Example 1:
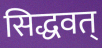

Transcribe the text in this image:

सिद्धवत्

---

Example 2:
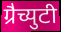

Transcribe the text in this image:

ग्रैच्युटी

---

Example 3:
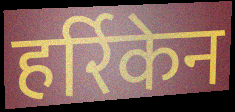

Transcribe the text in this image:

हर्रिकेन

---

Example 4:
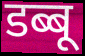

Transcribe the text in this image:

डब्बू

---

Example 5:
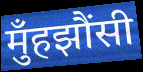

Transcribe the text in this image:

मुँहझौंसी